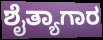
ಶೈತ್ಯಾಗಾರ